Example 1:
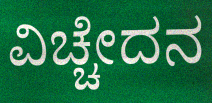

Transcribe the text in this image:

ವಿಚ್ಚೇದನ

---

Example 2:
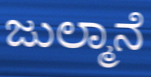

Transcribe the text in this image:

ಜುಲ್ಮಾನೆ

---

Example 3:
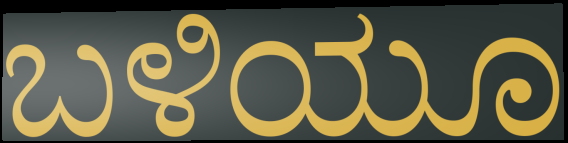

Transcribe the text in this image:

ಬಳಿಯೂ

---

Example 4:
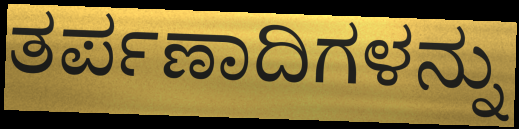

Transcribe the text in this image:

ತರ್ಪಣಾದಿಗಳನ್ನು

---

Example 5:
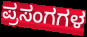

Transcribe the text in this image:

ಪ್ರಸಂಗಗಳ